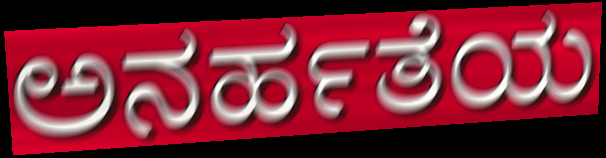
ಅನರ್ಹತೆಯ